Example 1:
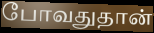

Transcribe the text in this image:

போவதுதான்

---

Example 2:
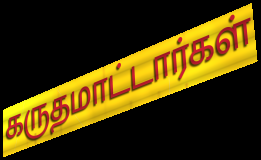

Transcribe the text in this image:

கருதமாட்டார்கள்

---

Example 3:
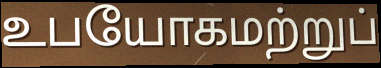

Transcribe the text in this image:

உபயோகமற்றுப்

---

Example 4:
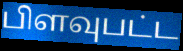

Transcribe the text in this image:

பிளவுபட்ட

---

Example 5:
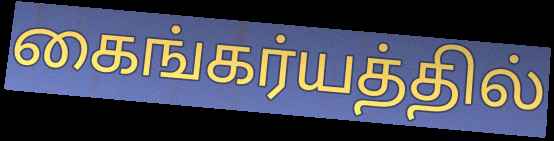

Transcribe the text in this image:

கைங்கர்யத்தில்